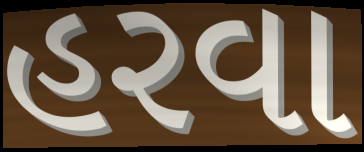
હરવા